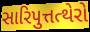
સારિપુત્તત્થેરો